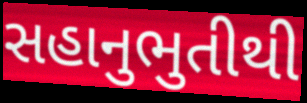
સહાનુભુતીથી